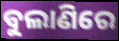
ବୁଲାଣିରେ